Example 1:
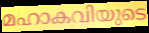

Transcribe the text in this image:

മഹാകവിയുടെ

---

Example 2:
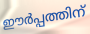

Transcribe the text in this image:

ഈർപ്പത്തിന്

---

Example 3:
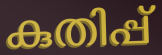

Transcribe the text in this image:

കുതിപ്പ്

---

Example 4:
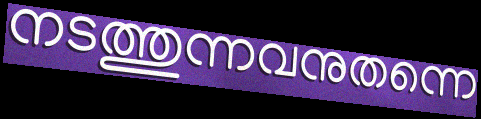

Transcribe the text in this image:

നടത്തുന്നവനുതന്നെ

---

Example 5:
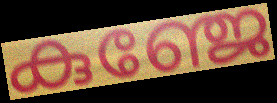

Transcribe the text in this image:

കുഞ്ജേ